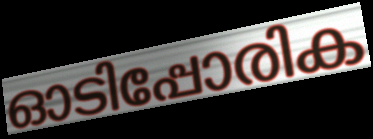
ഓടിപ്പോരിക